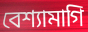
বেশ্যামাগি